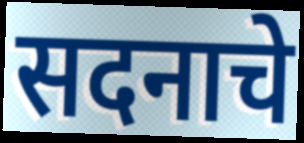
सदनाचे